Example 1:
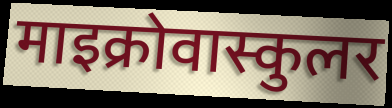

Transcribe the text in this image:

माइक्रोवास्कुलर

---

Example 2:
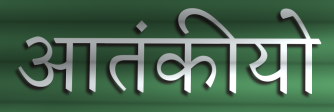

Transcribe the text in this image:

आतंकीयो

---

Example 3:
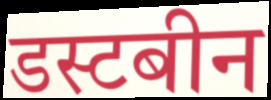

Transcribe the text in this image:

डस्टबीन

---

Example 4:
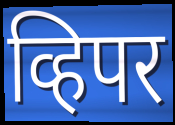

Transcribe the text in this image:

व्हिपर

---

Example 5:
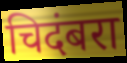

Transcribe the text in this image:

चिदंबरा